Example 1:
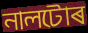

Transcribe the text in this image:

নালটোৰ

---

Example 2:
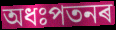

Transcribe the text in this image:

অধঃপতনৰ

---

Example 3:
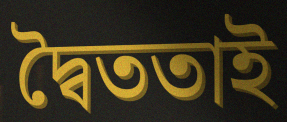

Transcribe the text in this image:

দ্বৈততাই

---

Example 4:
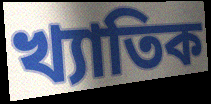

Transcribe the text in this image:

খ্যাতিক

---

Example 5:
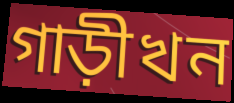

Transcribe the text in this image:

গাড়ীখন